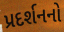
પ્રદર્શનનો